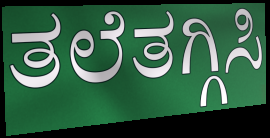
ತಲೆತಗ್ಗಿಸಿ